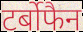
टर्बोफैन